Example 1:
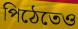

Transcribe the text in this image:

পিঠেতেও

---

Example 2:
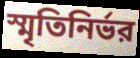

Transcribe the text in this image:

স্মৃতিনির্ভর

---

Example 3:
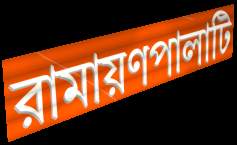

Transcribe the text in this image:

রামায়ণপালাটি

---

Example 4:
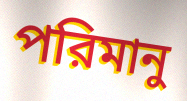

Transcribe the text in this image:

পরিমানু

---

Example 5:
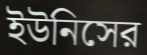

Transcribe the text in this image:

ইউনিসের